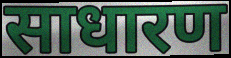
साधारण